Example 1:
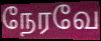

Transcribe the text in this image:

நேரவே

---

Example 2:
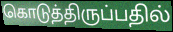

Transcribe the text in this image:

கொடுத்திருப்பதில்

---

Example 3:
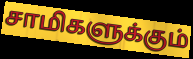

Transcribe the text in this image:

சாமிகளுக்கும்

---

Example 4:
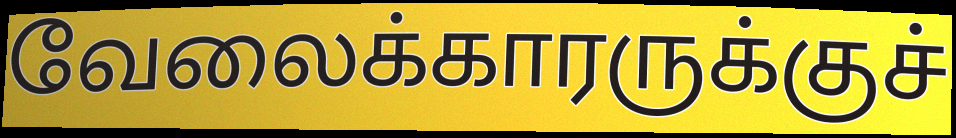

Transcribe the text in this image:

வேலைக்காரருக்குச்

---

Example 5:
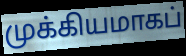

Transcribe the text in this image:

முக்கியமாகப்